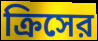
ক্রিসের